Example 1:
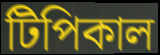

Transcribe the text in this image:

টিপিকাল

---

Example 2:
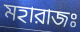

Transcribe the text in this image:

মহারাজঃ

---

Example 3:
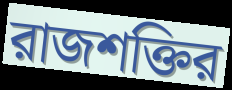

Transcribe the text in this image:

রাজশক্তির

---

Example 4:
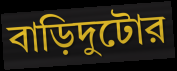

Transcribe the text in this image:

বাড়িদুটোর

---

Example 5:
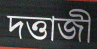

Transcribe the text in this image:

দত্তাজী